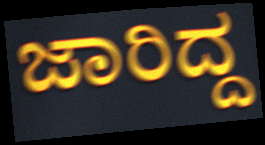
ಜಾರಿದ್ದ